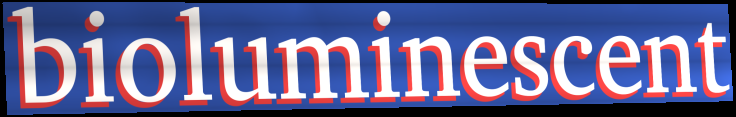
bioluminescent